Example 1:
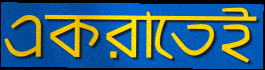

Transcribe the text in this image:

একরাতেই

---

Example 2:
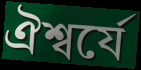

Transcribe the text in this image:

ঐশ্বর্যে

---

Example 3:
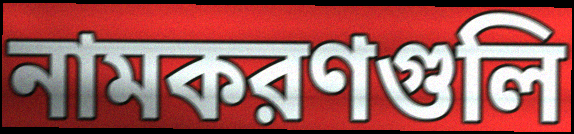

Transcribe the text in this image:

নামকরণগুলি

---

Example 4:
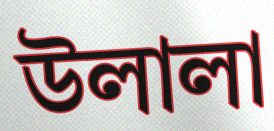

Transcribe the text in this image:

উলালা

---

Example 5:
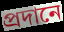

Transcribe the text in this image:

প্রদানে